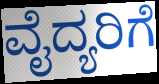
ವೈದ್ಯರಿಗೆ